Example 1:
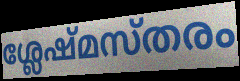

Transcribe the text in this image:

ശ്ലേഷ്മസ്തരം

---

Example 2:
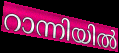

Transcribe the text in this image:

റാന്നിയിൽ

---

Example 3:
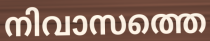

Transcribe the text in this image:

നിവാസത്തെ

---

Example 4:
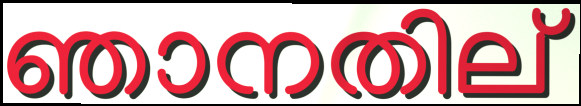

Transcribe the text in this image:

ഞാനതില്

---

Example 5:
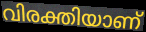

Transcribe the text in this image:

വിരക്തിയാണ്